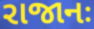
રાજાનઃ